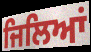
ਜਿਲਿਆਂ